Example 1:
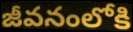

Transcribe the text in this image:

జీవనంలోకి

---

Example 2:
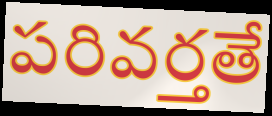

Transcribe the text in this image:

పరివర్తతే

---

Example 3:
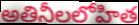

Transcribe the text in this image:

అతినీలలోహిత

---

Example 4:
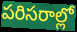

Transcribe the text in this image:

పరిసరాల్లో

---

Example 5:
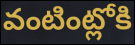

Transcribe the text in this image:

వంటింట్లోకి